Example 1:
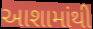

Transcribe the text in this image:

આશામાંથી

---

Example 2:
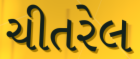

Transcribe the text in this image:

ચીતરેલ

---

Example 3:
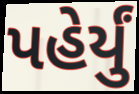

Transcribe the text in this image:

પહેર્યું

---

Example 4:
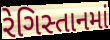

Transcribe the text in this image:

રેગિસ્તાનમાં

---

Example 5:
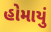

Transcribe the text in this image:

હોમાયું